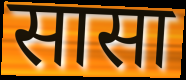
सासा